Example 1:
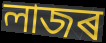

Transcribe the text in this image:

লাজৰ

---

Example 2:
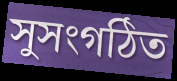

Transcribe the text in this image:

সুসংগঠিত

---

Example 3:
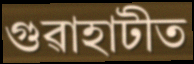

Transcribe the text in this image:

গুৱাহাটীত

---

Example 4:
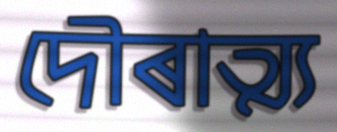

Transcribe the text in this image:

দৌৰাত্ম্য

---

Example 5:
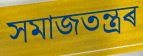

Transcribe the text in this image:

সমাজতন্ত্ৰৰ